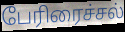
பேரிரைச்சல்